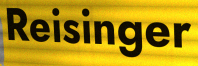
Reisinger